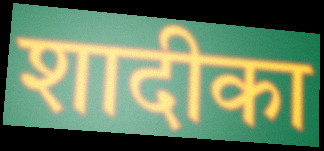
शादीका